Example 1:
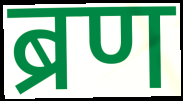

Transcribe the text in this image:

ब्रण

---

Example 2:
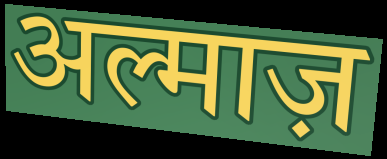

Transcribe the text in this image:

अल्माज़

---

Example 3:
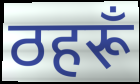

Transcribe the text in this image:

ठहरूँ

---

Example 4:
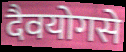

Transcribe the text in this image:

दैवयोगसे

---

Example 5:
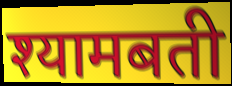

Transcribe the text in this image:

श्यामबती